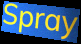
Spray